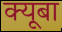
क्यूबा